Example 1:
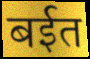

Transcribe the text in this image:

बईत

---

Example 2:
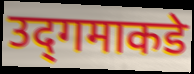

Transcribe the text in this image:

उद्‌गमाकडे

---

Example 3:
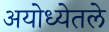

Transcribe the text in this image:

अयोध्येतले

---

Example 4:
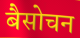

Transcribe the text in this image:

बैसोचन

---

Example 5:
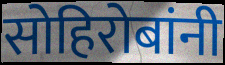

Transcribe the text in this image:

सोहिरोबांनी